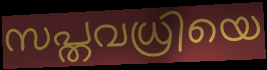
സപ്തവധ്രിയെ